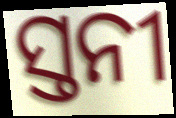
ସ୍ତନୀ